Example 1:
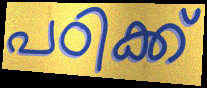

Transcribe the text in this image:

പഠിക്ക്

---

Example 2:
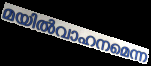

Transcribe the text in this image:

മയിൽവാഹനമെന്ന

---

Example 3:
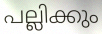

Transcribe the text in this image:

പല്ലിക്കും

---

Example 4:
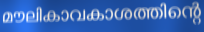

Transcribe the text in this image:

മൗലികാവകാശത്തിന്റെ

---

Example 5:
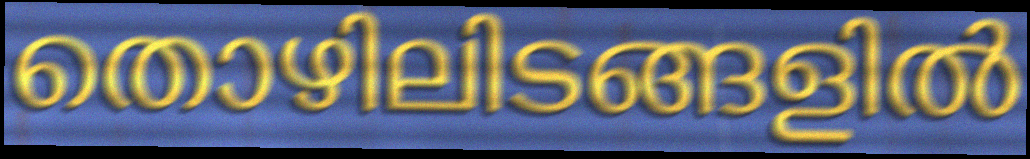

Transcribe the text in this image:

തൊഴിലിടങ്ങളിൽ